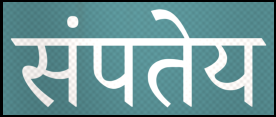
संपतेय